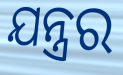
ଯନ୍ତ୍ରର